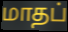
மாதப்